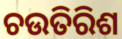
ଚଉତିରିଶ